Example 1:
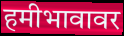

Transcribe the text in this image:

हमीभावावर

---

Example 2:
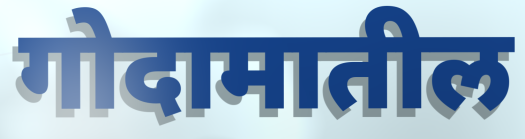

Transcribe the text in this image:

गोदामातील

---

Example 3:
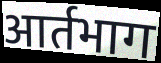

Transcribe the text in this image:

आर्तभाग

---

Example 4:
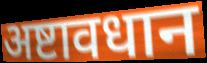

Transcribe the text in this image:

अष्टावधान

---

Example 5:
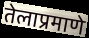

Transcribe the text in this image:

तेलाप्रमाणे